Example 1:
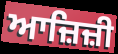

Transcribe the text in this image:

ਆਜ਼ਿਜ਼ੀ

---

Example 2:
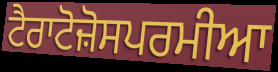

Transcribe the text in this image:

ਟੈਰਾਟੋਜ਼ੋਸਪਰਮੀਆ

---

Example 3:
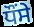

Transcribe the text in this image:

ਧੌਂਸੇ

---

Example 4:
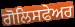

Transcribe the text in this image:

ਗੋਲਿਸਫੇਅਰ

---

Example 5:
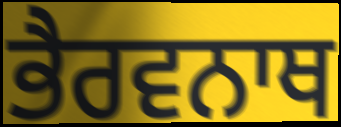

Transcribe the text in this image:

ਭੈਰਵਨਾਥ